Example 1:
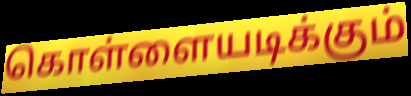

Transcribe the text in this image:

கொள்ளையடிக்கும்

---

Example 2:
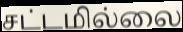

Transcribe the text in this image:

சட்டமில்லை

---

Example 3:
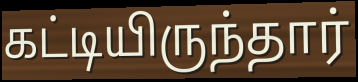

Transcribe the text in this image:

கட்டியிருந்தார்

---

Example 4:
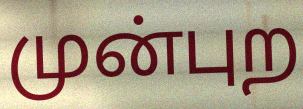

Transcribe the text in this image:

முன்புற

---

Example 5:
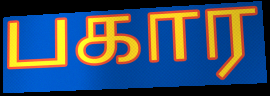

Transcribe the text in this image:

பகார